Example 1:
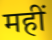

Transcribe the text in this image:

महीं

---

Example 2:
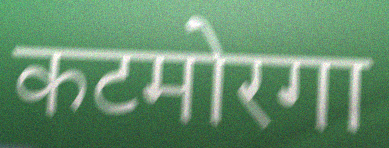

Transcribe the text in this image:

कटमोरगा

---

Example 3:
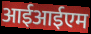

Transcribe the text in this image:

आईआईएम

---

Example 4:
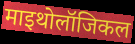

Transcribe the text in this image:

माइथोलॉजिकल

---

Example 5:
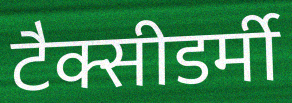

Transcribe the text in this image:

टैक्सीडर्मी